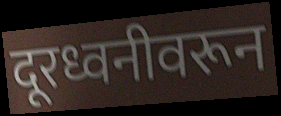
दूरध्वनीवरून